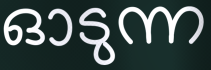
ഓടുന്ന